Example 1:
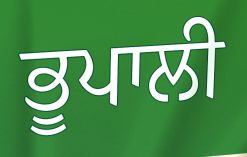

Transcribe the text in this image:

ਭੂਪਾਲੀ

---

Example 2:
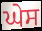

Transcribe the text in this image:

ਘੇਸ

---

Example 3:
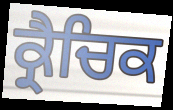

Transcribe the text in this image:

ਕ੍ਰੈਚਿਕ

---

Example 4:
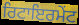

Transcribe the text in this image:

ਰਿਟਾਇਰਮੇਂਟ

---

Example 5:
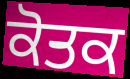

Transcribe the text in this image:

ਕੋਤਕ